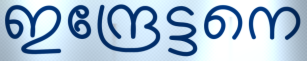
ഇന്ദ്രേട്ടനെ